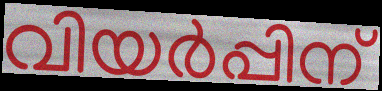
വിയർപ്പിന്